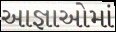
આજ્ઞાઓમાં